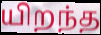
யிறந்த